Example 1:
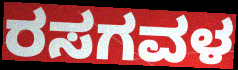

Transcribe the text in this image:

ರಸಗವಳ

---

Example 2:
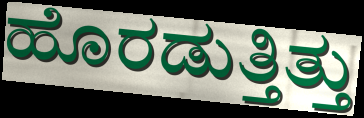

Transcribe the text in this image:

ಹೊರಡುತ್ತಿತ್ತು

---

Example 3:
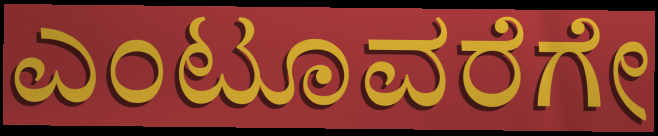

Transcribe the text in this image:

ಎಂಟೂವರೆಗೇ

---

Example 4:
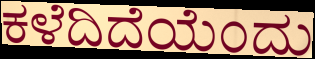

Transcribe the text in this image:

ಕಳೆದಿದೆಯೆಂದು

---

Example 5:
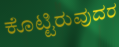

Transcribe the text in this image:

ಕೊಟ್ಟಿರುವುದರ